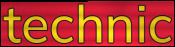
technic